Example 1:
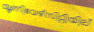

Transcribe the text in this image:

യൂണിവേഴ്സിറ്റിയില്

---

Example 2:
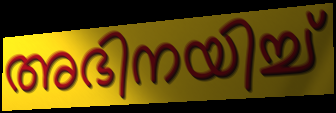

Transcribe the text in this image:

അഭിനയിച്ച്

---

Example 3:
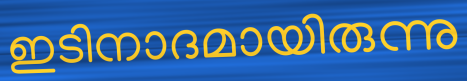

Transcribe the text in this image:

ഇടിനാദമായിരുന്നു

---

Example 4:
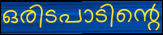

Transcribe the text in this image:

ഒരിടപാടിന്റെ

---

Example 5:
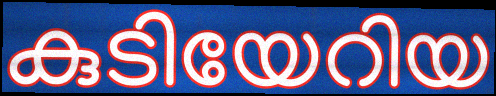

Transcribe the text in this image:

കുടിയേറിയ